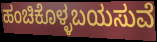
ಹಂಚಿಕೊಳ್ಳಬಯಸುವೆ